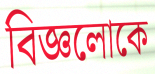
বিজ্ঞলোকে